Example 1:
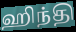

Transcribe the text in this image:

ஹிந்தி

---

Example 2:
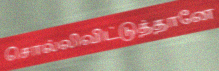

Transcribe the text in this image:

சொல்லிவிட்டுத்தானே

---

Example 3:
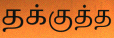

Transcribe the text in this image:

தக்குத்த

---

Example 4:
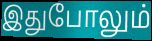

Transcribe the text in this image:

இதுபோலும்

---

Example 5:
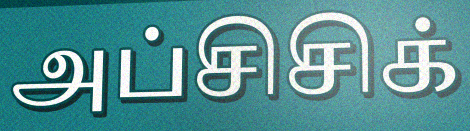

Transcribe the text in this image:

அப்சிசிக்